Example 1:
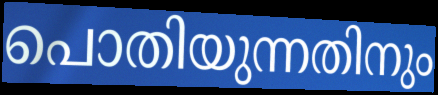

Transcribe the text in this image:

പൊതിയുന്നതിനും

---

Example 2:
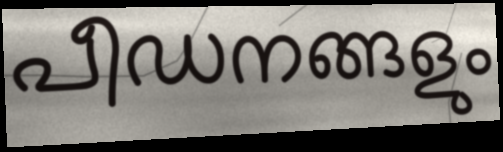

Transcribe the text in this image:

പീഡനങ്ങളും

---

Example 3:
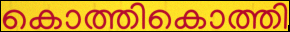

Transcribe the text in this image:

കൊത്തികൊത്തി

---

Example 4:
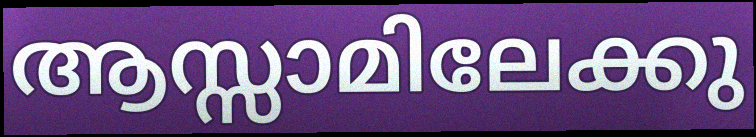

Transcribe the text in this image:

ആസ്സാമിലേക്കു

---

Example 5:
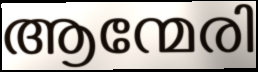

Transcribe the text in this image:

ആന്മേരി